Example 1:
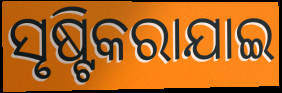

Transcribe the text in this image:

ସୃଷ୍ଟିକରାଯାଇ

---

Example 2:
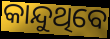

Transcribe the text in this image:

କାନ୍ଦୁଥିବେ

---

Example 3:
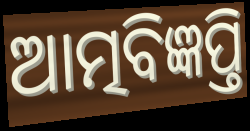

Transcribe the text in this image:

ଆତ୍ମବିଜ୍ଞପ୍ତି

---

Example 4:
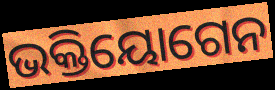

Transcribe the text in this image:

ଭକ୍ତିୟୋଗେନ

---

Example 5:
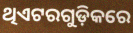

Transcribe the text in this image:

ଥିଏଟରଗୁଡ଼ିକରେ